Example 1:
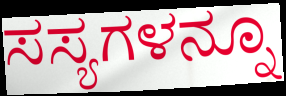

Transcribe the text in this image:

ಸಸ್ಯಗಳನ್ನೂ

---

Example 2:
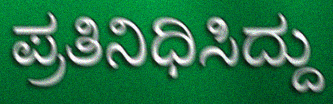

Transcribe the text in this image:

ಪ್ರತಿನಿಧಿಸಿದ್ದು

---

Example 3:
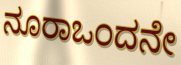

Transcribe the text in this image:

ನೂರಾಒಂದನೇ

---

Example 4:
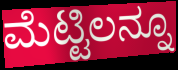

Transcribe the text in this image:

ಮೆಟ್ಟಿಲನ್ನೂ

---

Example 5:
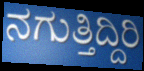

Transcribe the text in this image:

ನಗುತ್ತಿದ್ದಿರಿ